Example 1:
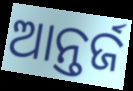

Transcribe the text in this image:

ଆନ୍ତର୍ଜ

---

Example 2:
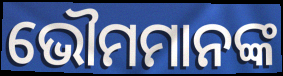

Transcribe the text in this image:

ଭୌମମାନଙ୍କ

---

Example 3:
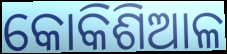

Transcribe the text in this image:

କୋକିଶିଆଳ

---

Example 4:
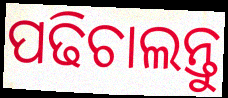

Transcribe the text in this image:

ପଢିଚାଲନ୍ତୁ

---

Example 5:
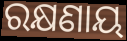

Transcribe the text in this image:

ରକ୍ଷଣାୟ